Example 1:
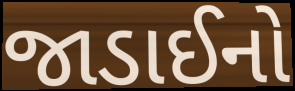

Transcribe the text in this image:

જાડાઈનો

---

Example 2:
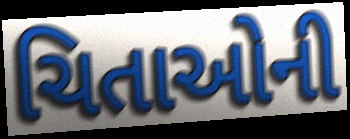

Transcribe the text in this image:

ચિતાઓની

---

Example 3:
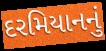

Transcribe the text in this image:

દરમિયાનનું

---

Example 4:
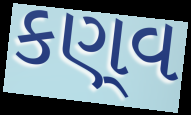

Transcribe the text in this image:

કણ્‌વ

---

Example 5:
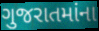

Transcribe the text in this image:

ગુજરાતમાંના